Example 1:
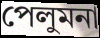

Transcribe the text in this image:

পেলুমনা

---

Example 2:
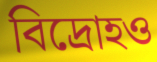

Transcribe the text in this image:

বিদ্রোহও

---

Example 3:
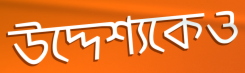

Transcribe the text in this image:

উদ্দেশ্যকেও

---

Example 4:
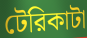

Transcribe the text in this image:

টেরিকাটা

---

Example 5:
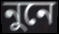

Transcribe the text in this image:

নুনে